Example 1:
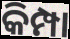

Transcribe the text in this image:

କିମ୍ପା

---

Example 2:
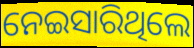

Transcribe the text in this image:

ନେଇସାରିଥିଲେ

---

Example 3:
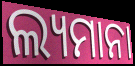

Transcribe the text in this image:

ଲ୍ୟମାନା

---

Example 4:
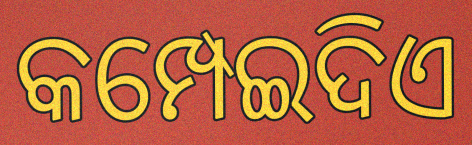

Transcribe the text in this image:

କମ୍ପେଇଦିଏ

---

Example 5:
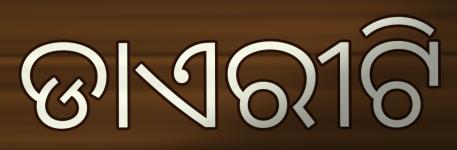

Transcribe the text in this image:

ଡାଏରୀଟି